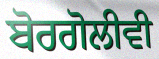
ਬੋਰਗੋਲੀਵੀ